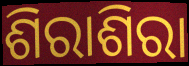
ଶିରାଶିରା